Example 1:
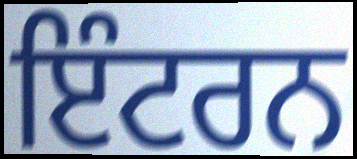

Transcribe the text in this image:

ਇੰਟਰਨ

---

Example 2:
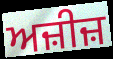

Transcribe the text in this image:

ਅਜ਼ੀਜ਼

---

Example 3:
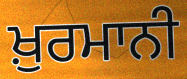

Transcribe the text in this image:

ਖ਼ੁਰਮਾਨੀ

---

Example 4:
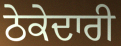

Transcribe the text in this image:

ਠੇਕੇਦਾਰੀ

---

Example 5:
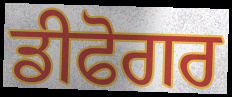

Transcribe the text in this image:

ਡੀਫੋਗਰ